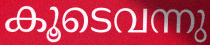
കൂടെവന്നു